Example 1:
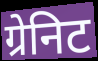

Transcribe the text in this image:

ग्रेनिट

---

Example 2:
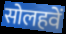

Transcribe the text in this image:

सोलहवें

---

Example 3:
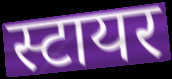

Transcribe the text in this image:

स्टायर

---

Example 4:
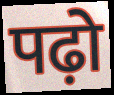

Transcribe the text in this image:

पढ़ो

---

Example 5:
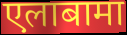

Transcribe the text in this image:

एलाबामा